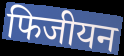
फिजीयन